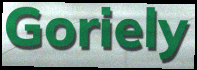
Goriely